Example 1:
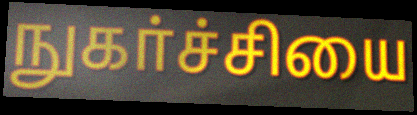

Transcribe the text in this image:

நுகர்ச்சியை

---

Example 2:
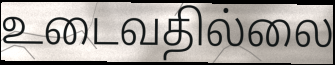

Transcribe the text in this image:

உடைவதில்லை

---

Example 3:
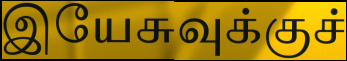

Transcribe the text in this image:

இயேசுவுக்குச்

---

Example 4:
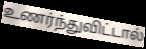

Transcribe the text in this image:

உணர்ந்துவிட்டால்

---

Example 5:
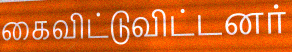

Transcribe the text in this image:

கைவிட்டுவிட்டனர்